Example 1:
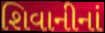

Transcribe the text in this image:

શિવાનીનાં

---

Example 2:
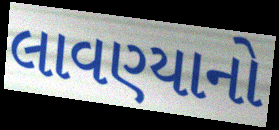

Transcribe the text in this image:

લાવણ્યાનો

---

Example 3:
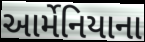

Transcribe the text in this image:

આર્મેનિયાના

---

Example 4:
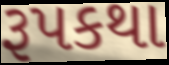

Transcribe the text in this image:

રૂપકથા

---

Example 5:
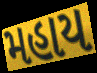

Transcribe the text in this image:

મહાય